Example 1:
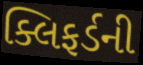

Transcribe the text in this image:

ક્લિફર્ડની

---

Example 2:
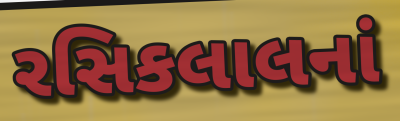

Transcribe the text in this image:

રસિકલાલનાં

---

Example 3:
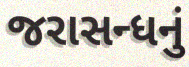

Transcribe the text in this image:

જરાસન્ધનું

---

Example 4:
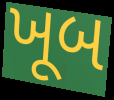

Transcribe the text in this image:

ખૂબ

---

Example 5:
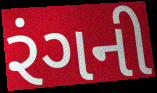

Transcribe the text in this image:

રંગની